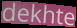
dekhte